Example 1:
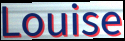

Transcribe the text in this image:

Louise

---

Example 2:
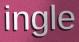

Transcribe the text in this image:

ingle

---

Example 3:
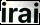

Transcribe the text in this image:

irai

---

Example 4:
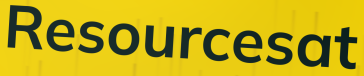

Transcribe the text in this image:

Resourcesat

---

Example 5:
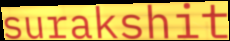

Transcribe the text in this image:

surakshit